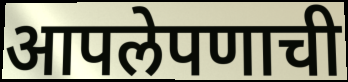
आपलेपणाची